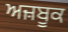
ਅਜ਼ਬੂਕ